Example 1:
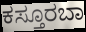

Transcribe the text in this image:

ಕಸ್ತೂರಬಾ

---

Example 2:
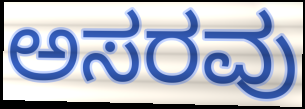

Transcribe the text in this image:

ಅಸರವು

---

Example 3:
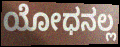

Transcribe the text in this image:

ಯೋಧನಲ್ಲ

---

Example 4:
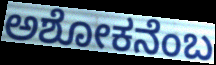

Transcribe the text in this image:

ಅಶೋಕನೆಂಬ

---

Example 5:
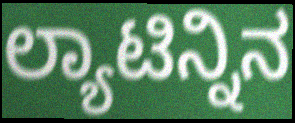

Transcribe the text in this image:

ಲ್ಯಾಟಿನ್ನಿನ